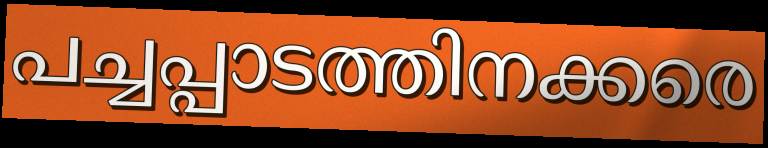
പച്ചപ്പാടത്തിനക്കരെ